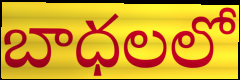
బాధలలో